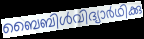
ബൈബിൾവിദ്യാർഥിക്കു